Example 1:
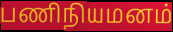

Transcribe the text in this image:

பணிநியமனம்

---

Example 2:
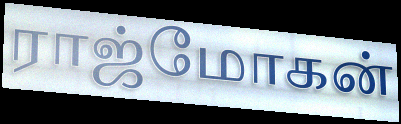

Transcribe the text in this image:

ராஜ்மோகன்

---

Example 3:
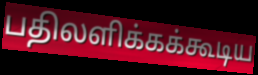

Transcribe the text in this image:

பதிலளிக்கக்கூடிய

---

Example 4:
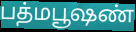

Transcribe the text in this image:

பத்மபூஷண்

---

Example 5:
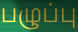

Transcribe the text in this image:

பழுப்பு